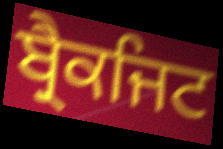
ਬ੍ਰੈਕਜਿਟ